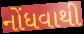
નોંધવાથી